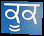
ਕੂਕ